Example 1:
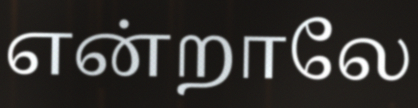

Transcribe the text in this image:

என்றாலே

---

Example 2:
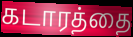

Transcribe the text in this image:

கடாரத்தை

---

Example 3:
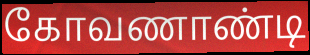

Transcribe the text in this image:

கோவணாண்டி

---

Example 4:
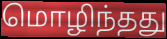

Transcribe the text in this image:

மொழிந்தது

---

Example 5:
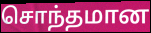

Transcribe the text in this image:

சொந்தமான